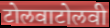
टोलवाटोलवी